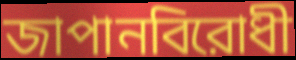
জাপানবিরোধী